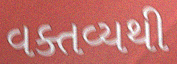
વક્તવ્યથી